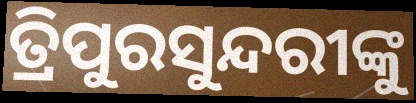
ତ୍ରିପୁରସୁନ୍ଦରୀଙ୍କୁ